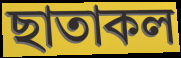
ছাতাকল